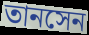
তানসেন